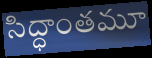
సిద్ధాంతమూ